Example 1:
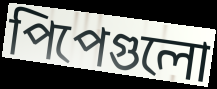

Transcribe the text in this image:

পিপেগুলো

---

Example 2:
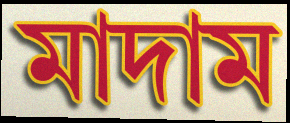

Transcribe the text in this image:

মাদাম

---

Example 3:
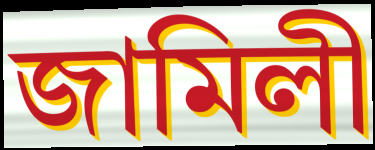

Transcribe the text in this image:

জামিলী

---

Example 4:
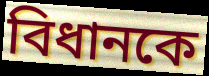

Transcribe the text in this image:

বিধানকে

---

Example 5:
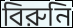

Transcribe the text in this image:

বিরুনি